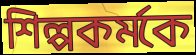
শিল্পকর্মকে